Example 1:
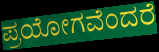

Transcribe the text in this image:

ಪ್ರಯೋಗವೆಂದರೆ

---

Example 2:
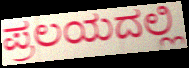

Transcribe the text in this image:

ಪ್ರಲಯದಲ್ಲಿ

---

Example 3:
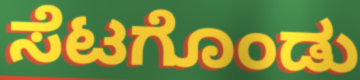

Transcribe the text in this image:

ಸೆಟಗೊಂಡು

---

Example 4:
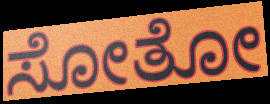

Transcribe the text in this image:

ಸೋತೋ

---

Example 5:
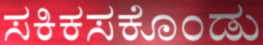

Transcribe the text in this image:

ಸಕಿಕಸಕೊಂಡು